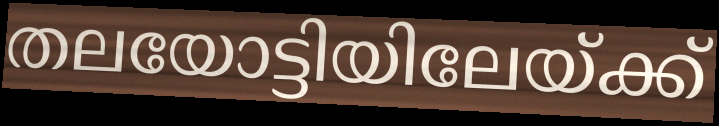
തലയോട്ടിയിലേയ്ക്ക്